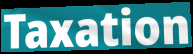
Taxation